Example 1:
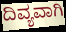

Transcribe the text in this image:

ದಿವ್ಯವಾಗಿ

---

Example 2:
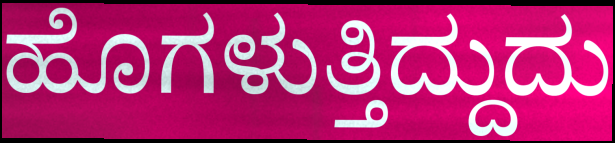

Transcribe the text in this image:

ಹೊಗಳುತ್ತಿದ್ದುದು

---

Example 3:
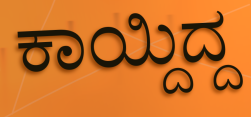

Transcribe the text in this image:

ಕಾಯ್ದಿದ್ದ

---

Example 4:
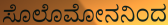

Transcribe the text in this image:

ಸೊಲೊಮೋನನಿಂದ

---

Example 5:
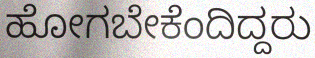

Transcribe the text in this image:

ಹೋಗಬೇಕೆಂದಿದ್ದರು